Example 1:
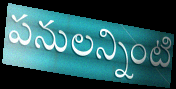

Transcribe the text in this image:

పనులన్నింటి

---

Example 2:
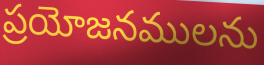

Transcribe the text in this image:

ప్రయోజనములను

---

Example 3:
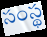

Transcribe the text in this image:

సంస్థ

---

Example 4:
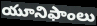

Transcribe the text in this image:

యూనిఫాంలు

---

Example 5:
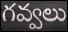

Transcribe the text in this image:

గవ్వలు